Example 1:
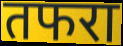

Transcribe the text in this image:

तफरा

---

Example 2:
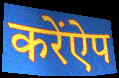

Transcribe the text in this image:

करेंऐप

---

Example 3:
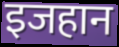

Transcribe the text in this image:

इजहान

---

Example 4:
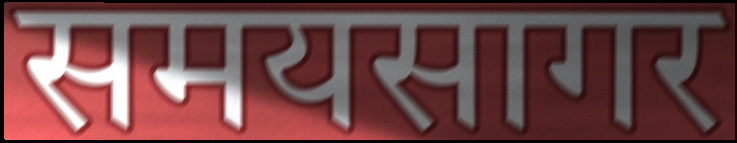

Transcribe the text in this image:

समयसागर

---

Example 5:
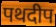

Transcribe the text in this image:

पथदीप